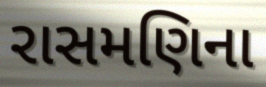
રાસમણિના